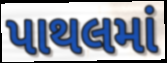
પાથલમાં